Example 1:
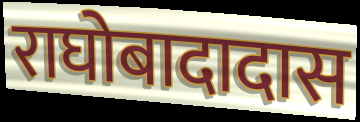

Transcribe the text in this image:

राघोबादादास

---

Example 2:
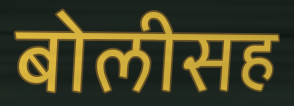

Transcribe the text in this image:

बोलीसह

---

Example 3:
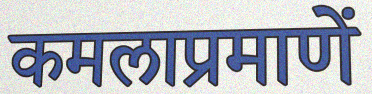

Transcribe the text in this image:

कमलाप्रमाणें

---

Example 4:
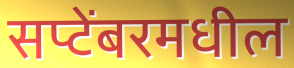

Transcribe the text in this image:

सप्टेंबरमधील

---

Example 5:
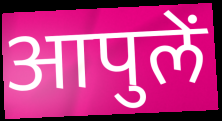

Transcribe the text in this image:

आपुलें